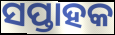
ସପ୍ତାହକ